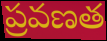
ప్రవణత